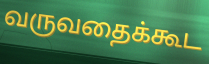
வருவதைக்கூட